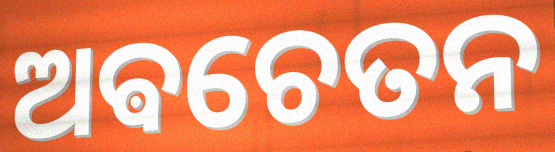
ଅଵଚେତନ